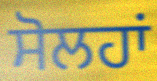
ਸੋਲਹਾਂ